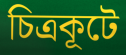
চিত্রকূটে